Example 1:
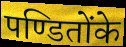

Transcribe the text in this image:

पण्डितोंके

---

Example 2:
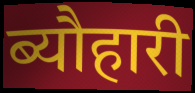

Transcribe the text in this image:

ब्यौहारी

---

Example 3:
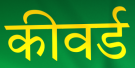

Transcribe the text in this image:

कीवर्ड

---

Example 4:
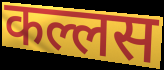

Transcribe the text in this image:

कल्लस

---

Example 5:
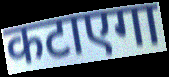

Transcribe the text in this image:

कटाएगा